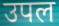
उपल